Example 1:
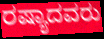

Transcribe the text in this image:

ರಷ್ಯಾದವರು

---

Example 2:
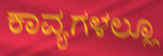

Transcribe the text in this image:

ಕಾವ್ಯಗಳಲ್ಲೂ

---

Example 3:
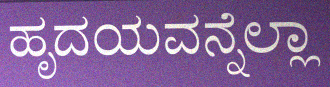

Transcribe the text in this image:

ಹೃದಯವನ್ನೆಲ್ಲಾ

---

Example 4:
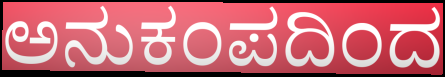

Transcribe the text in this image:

ಅನುಕಂಪದಿಂದ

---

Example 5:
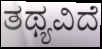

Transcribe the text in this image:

ತಥ್ಯವಿದೆ